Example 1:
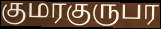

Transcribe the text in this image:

குமரகுருபர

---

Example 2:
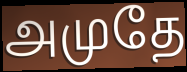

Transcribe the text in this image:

அமுதே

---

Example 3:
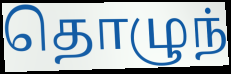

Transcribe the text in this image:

தொழுந்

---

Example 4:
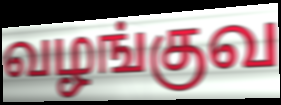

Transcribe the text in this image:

வழங்குவ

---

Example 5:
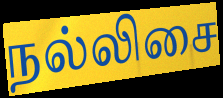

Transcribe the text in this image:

நல்லிசை